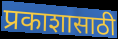
प्रकाशासाठी